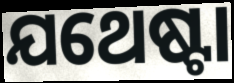
ଯଥେଷ୍ଟା